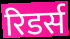
रिडर्स